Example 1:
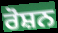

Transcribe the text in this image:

ਰੋਸ਼ਨ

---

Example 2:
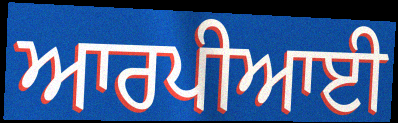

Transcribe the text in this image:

ਆਰਪੀਆਈ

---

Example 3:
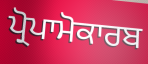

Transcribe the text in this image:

ਪ੍ਰੋਪਾਮੋਕਾਰਬ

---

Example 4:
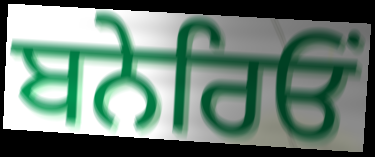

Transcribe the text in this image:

ਬਨੇਰਿਓਂ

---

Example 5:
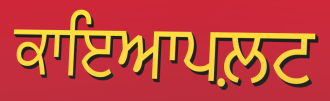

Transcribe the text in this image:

ਕਾਇਆਪਲ਼ਟ